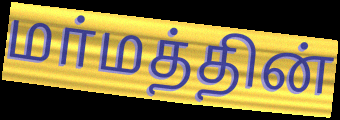
மர்மத்தின்